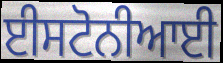
ਈਸਟੋਨੀਆਈ